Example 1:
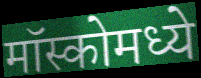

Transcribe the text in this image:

मॉस्कोमध्ये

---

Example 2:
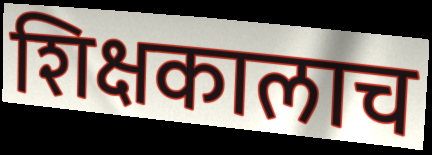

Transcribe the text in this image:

शिक्षकालाच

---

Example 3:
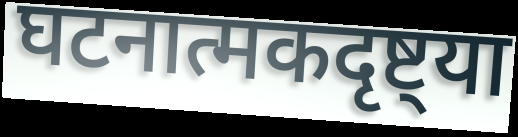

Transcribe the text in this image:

घटनात्मकदृष्ट्या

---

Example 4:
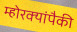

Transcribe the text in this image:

म्होरक्यांपैकी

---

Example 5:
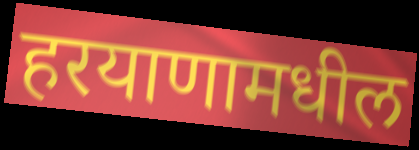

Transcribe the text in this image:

हरयाणामधील